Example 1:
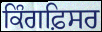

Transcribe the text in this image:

ਕਿੰਗਫ਼ਿਸਰ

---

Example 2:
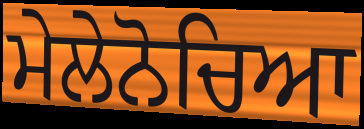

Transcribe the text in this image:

ਮੇਲੇਨੋਚਿਆ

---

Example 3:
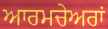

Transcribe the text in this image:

ਆਰਮਚੇਅਰਾਂ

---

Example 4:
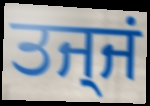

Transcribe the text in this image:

ਤਜ੍ਜਂ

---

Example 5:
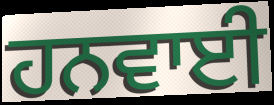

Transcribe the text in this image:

ਹਨਵਾਈ